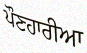
ਪੌਣਹਾਰੀਆ